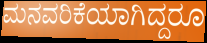
ಮನವರಿಕೆಯಾಗಿದ್ದರೂ